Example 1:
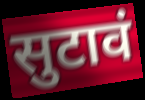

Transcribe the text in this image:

सुटावं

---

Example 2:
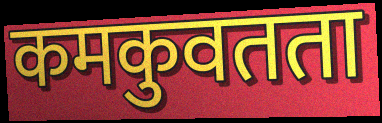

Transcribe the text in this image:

कमकुवतता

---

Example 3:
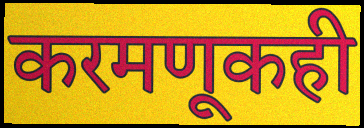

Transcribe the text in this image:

करमणूकही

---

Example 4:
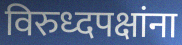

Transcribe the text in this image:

विरुध्दपक्षांना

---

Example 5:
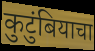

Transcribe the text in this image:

कुटुंबियाचा